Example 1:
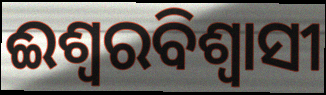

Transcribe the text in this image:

ଈଶ୍ବରବିଶ୍ବାସୀ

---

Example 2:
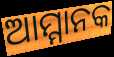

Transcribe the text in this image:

ଆମ୍ମାନକ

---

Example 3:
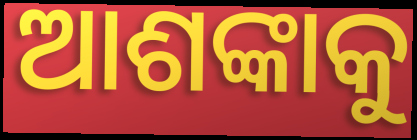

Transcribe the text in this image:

ଆଶଙ୍କାକୁ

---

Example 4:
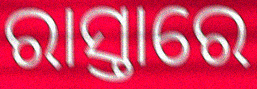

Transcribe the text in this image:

ରାସ୍ତାରେ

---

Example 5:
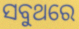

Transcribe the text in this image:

ସବୁଥରେ